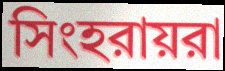
সিংহরায়রা